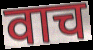
वाच